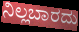
ನಿಲ್ಲಬಾರದು